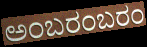
ಅಂಬರಂಬರಂ